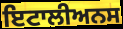
ਇਟਾਲੀਅਨਸ